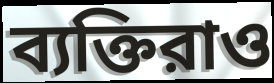
ব্যক্তিরাও